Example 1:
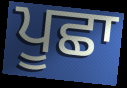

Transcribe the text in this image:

ਪੂਛਾ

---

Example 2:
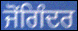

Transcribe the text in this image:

ਜੋਂਗਿੰਦਰ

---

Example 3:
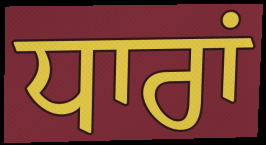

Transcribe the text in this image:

ਧਾਰਾਂ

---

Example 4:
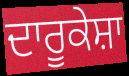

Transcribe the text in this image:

ਦਾਰੂਕੇਸ਼ਾ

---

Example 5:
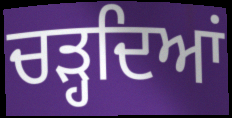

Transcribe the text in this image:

ਚੜ੍ਹਦਿਆਂ